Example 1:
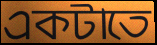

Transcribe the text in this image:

একটাতে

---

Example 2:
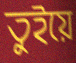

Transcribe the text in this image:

তুইয়ে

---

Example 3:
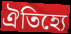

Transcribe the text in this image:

ঐতিহ্যে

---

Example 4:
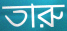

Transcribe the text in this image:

তারু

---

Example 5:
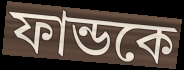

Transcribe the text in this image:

ফান্ডকে